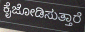
ಕೈಜೋಡಿಸುತ್ತಾರೆ